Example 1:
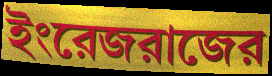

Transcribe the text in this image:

ইংরেজরাজের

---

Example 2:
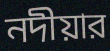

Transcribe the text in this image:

নদীয়ার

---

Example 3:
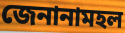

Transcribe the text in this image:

জেনানামহল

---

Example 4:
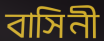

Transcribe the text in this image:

বাসিনী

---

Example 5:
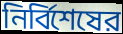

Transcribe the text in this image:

নির্বিশেষের